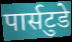
पार्सटुडे